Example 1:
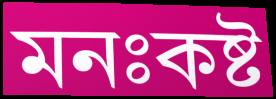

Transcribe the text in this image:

মনঃকষ্ট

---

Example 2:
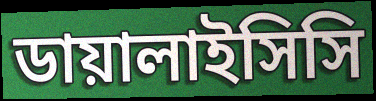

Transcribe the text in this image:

ডায়ালাইসিসি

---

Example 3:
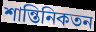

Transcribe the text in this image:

শান্তিনিকতন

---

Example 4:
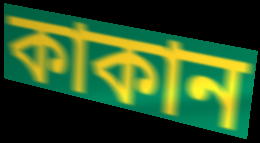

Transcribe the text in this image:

কাকান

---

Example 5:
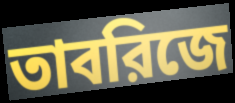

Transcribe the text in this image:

তাবরিজে